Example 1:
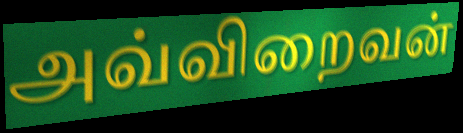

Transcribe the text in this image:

அவ்விறைவன்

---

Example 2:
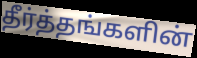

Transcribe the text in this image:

தீர்த்தங்களின்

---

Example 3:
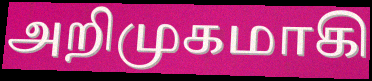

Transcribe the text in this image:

அறிமுகமாகி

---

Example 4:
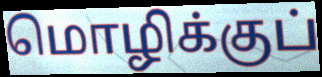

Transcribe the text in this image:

மொழிக்குப்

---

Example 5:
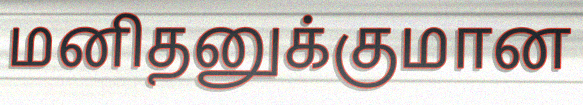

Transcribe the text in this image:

மனிதனுக்குமான